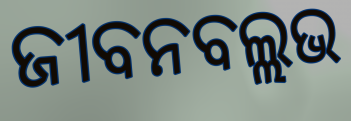
ଜୀବନବଲ୍ଲଭ